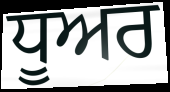
ਧੂਅਰ